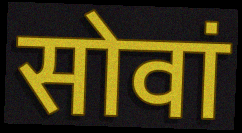
सोवां